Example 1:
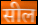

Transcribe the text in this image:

सील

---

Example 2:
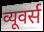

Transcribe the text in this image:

व्यूवर्स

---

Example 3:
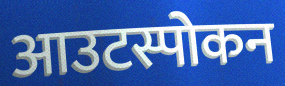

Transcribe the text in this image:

आउटस्पोकन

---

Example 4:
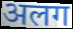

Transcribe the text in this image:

अलग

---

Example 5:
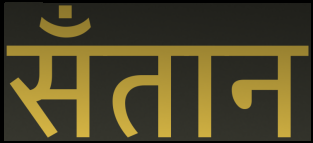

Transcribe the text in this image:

सँतान